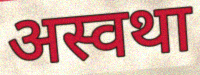
अस्वथा